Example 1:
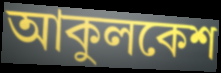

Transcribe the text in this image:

আকুলকেশ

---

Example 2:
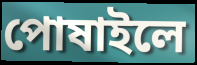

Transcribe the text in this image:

পোষাইলে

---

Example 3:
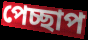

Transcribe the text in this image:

পেচ্ছাপ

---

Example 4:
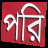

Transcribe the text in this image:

পরি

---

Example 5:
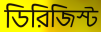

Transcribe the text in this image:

ডিরিজিস্ট